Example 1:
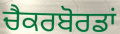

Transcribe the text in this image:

ਚੈਕਰਬੋਰਡਾਂ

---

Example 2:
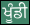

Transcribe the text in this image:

ਖੂੰਡੀ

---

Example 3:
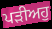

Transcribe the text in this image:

ਪੜੀਅਹੁ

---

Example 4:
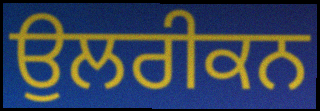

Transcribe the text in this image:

ਉਲਰੀਕਨ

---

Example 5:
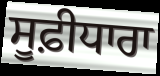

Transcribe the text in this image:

ਸੂਫ਼ੀਧਾਰਾ